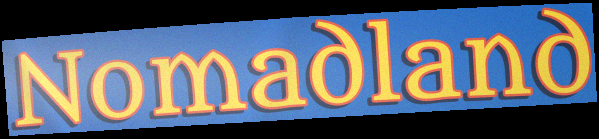
Nomadland